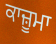
ਕਾਜ਼ੂਮਾ